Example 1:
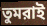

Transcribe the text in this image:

তুমরাই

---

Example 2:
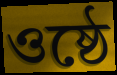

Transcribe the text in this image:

ওষ্ঠে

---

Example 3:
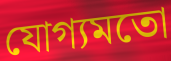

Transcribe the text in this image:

যোগ্যমতো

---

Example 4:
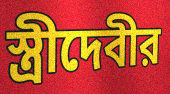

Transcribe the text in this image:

স্ত্রীদেবীর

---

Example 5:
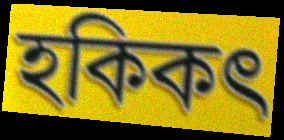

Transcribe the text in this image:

হকিকৎ